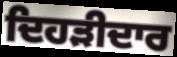
ਦਿਹੜੀਦਾਰ